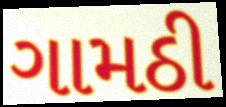
ગામઠી